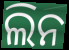
ଲିନ